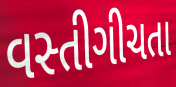
વસ્તીગીચતા